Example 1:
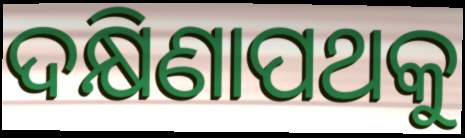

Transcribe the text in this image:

ଦକ୍ଷିଣାପଥକୁ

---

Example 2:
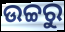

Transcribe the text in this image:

ଉଚ୍ଚରୁ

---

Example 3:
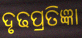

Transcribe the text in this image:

ଦୃଢପ୍ରତିଜ୍ଞା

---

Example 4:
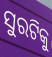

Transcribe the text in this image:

ସୁରଟିକୁ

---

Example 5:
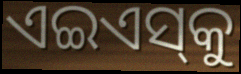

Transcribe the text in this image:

ଏଇଏସ୍‌କୁ